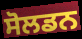
ਸੋਲਡਨ